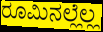
ರೂಮಿನಲ್ಲೆಲ್ಲ